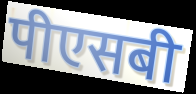
पीएसबी